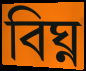
বিঘ্ন